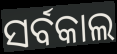
ସର୍ବକାଲ